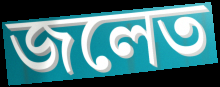
জলেত